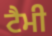
ਟੈਮੀ